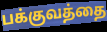
பக்குவத்தை